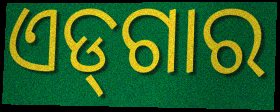
ଏଡ୍‌ଗାର